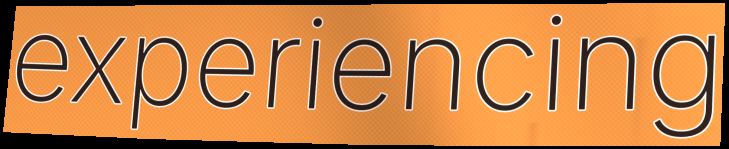
experiencing